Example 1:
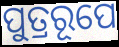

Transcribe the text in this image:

ପୁତ୍ରରୂପେ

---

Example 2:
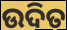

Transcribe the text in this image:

ଉଦିତ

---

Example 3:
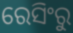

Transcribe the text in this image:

ରେସିଂରୁ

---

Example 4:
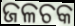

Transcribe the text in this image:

ଜଳଚକ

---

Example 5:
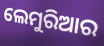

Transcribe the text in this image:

ଲେମୁରିଆର